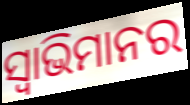
ସ୍ଵାଭିମାନର